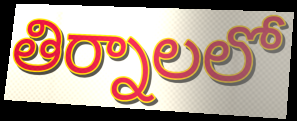
తిర్నాలలో